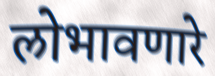
लोभावणारे